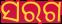
ସରଗ